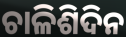
ଚାଳିଶିଦିନ